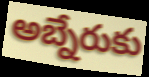
అబ్నేరుకు